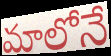
మాలోనే